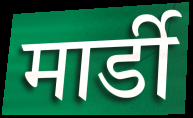
मार्डी